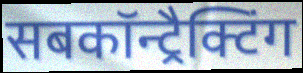
सबकॉन्ट्रैक्टिंग